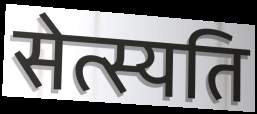
सेत्स्यति